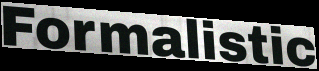
Formalistic